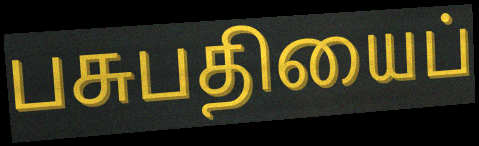
பசுபதியைப்